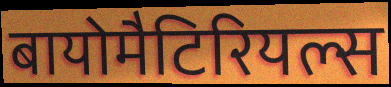
बायोमैटिरियल्स